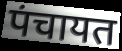
पंचायत